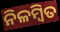
ନିଳମ୍ବିତ